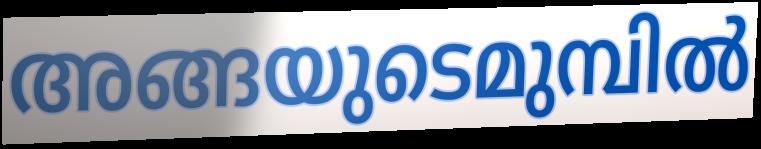
അങ്ങയുടെമുമ്പിൽ